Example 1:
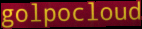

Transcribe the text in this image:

golpocloud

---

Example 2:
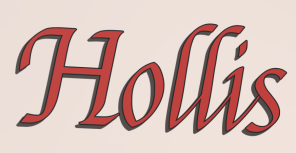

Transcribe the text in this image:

Hollis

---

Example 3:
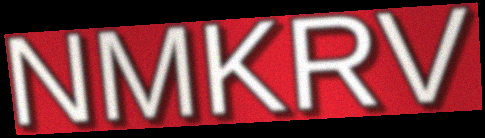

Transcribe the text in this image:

NMKRV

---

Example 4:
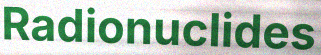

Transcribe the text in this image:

Radionuclides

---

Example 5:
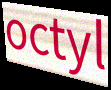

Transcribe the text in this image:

octyl